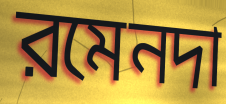
রমেনদা